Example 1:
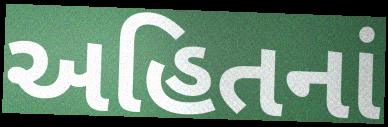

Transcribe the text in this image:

અહિતનાં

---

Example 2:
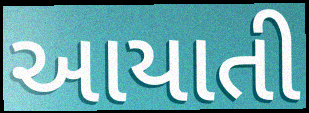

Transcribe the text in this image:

આયાતી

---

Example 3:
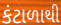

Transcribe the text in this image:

કંટાળાથી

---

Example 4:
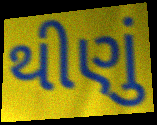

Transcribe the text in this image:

થીણું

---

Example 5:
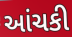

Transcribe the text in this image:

આંચકી